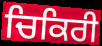
ਚਿਕਿਰੀ